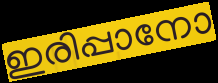
ഇരിപ്പാനോ